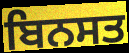
ਬਿਨਸਤ